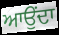
ਆਉਂਦਾ